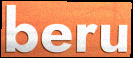
beru